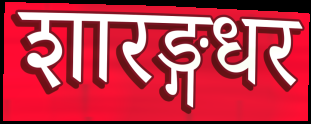
शारङ्गधर